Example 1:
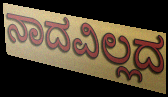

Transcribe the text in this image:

ನಾದವಿಲ್ಲದ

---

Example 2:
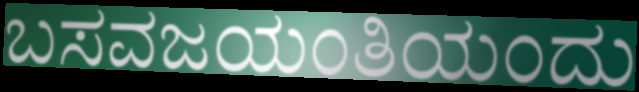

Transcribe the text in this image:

ಬಸವಜಯಂತಿಯಂದು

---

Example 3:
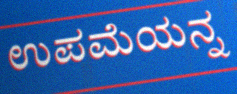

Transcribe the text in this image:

ಉಪಮೆಯನ್ನ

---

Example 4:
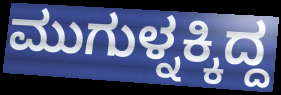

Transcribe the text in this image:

ಮುಗುಳ್ನಕ್ಕಿದ್ದ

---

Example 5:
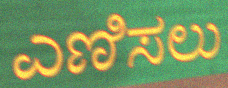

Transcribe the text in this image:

ಎಣಿಸಲು